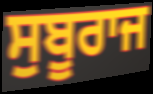
ਸੁਬੂਰਾਜ